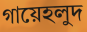
গায়েহলুদ